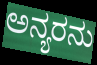
ಅನ್ಯರನು